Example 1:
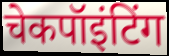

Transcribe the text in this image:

चेकपॉइंटिंग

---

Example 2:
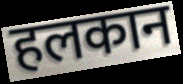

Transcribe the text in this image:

हलकान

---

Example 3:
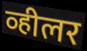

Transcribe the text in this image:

व्हीलर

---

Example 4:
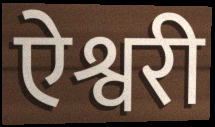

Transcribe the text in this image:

ऐश्वरी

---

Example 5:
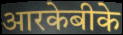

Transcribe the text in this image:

आरकेबीके